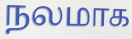
நலமாக